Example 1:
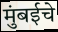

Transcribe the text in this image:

मुंबईचे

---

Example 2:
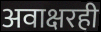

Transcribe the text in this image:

अवाक्षरही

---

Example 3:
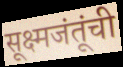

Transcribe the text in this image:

सूक्ष्मजंतूंची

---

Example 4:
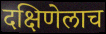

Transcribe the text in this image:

दक्षिणेलाच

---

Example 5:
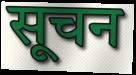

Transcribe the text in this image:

सूचन